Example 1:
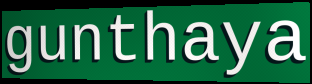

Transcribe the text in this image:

gunthaya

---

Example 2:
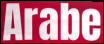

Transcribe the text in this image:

Arabe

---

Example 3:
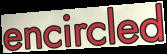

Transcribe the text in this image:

encircled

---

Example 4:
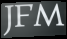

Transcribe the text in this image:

JFM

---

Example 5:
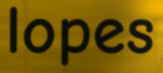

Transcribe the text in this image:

lopes